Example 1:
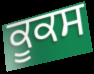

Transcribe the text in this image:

ਕੂਕਸ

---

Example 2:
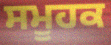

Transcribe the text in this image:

ਸਮੂਹਕ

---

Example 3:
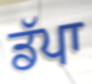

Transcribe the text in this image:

ਡੱਪਾ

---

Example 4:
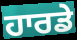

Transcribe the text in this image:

ਹਾਰਡੇ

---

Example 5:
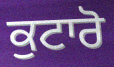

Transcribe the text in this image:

ਕੁਟਾਰੋ